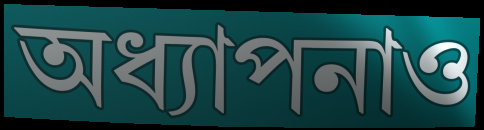
অধ্যাপনাও